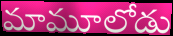
మామూలోడు